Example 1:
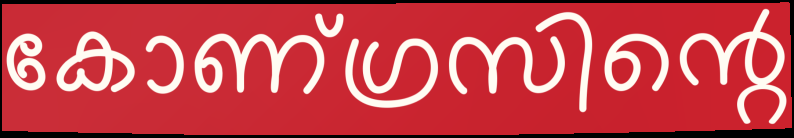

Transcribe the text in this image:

കോണ്ഗ്രസിന്റെ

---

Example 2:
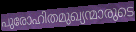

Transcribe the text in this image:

പുരോഹിതമുഖ്യന്മാരുടെ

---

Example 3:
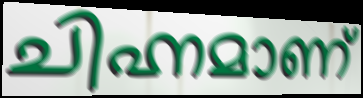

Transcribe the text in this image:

ചിഹ്നമാണ്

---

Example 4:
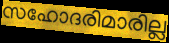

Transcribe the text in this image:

സഹോദരിമാരില്ല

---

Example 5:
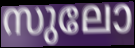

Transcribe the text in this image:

സുലോ